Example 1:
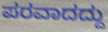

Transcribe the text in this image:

ಪರವಾದದ್ದು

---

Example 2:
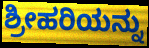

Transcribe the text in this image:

ಶ್ರೀಹರಿಯನ್ನು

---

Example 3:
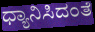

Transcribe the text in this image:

ಧ್ಯಾನಿಸಿದಂತೆ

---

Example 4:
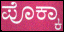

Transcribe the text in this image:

ಪೊಕ್ಕಾ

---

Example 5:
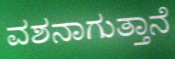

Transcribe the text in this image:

ವಶನಾಗುತ್ತಾನೆ